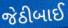
જેઠીબાઈ